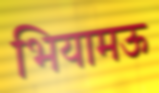
भियामऊ